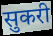
सुकरी